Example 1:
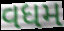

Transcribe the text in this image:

વધમ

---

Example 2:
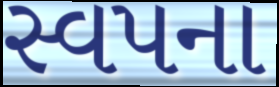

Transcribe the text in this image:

સ્વપના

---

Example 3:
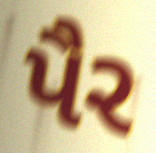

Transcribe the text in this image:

પૈર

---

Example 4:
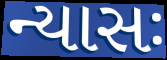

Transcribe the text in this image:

ન્યાસઃ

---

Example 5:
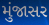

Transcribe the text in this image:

મુંજાસર